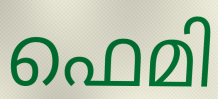
ഫെമി